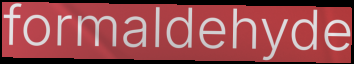
formaldehyde